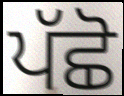
ਪੱਛੋ